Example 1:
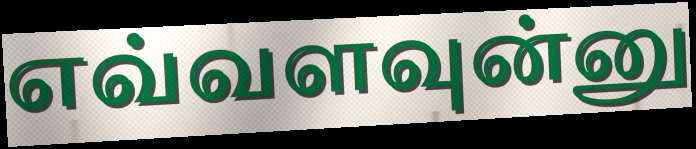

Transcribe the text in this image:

எவ்வளவுன்னு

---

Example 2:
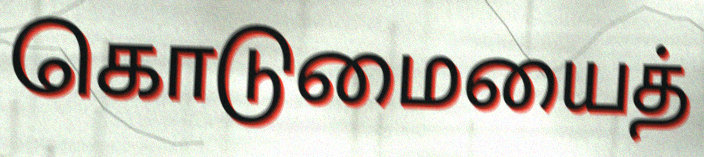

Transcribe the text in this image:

கொடுமையைத்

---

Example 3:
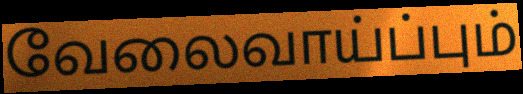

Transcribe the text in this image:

வேலைவாய்ப்பும்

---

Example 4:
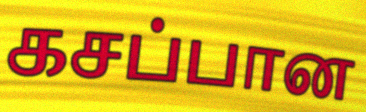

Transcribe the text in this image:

கசப்பான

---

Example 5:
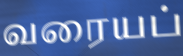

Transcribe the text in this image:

வரையப்